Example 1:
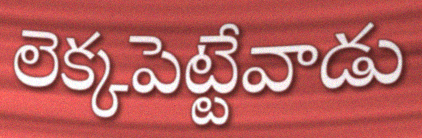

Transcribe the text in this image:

లెక్కపెట్టేవాడు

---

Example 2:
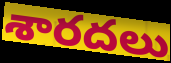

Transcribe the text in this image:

శారదలు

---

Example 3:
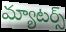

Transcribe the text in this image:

మ్యాటర్స్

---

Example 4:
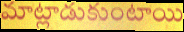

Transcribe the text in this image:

మాట్లాడుకుంటాయి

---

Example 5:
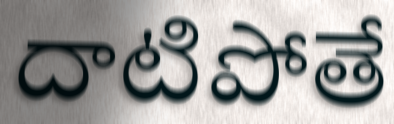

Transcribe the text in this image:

దాటిపోతే